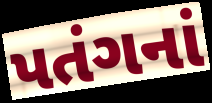
પતંગનાં